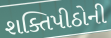
શક્તિપીઠોની